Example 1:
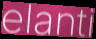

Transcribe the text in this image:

elanti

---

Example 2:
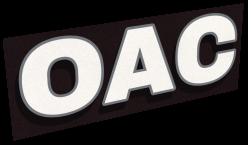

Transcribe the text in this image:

OAC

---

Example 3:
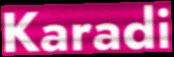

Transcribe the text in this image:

Karadi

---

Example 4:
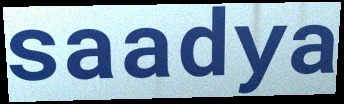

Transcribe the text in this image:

saadya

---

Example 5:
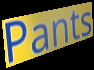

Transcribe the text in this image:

Pants